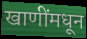
खाणींमधून